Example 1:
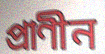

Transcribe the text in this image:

প্রাণীন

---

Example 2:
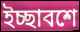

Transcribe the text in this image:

ইচ্ছাবশে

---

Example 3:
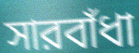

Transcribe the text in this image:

সারবাঁধা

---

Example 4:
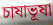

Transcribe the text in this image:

চাষাভূষা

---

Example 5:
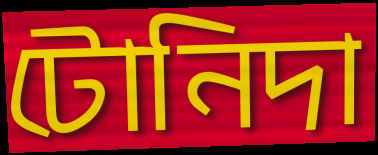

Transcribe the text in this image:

টোনিদা